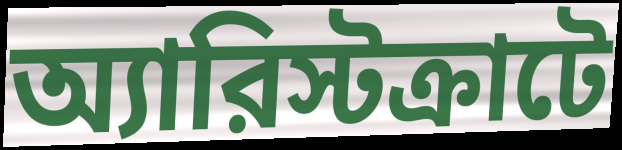
অ্যারিস্টক্রাটে